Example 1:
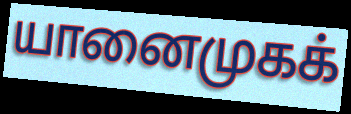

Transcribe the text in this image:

யானைமுகக்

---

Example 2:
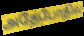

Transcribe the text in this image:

அதேபோதில்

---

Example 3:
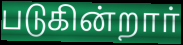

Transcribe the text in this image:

படுகின்றார்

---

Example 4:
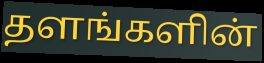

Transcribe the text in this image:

தளங்களின்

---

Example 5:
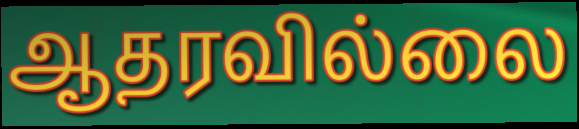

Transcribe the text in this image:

ஆதரவில்லை